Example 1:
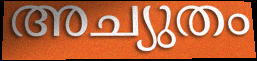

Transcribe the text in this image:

അച്യുതം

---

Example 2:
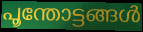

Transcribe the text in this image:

പൂന്തോട്ടങ്ങൾ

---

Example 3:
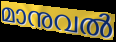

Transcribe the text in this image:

മാനുവൽ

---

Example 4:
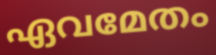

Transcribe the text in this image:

ഏവമേതം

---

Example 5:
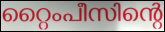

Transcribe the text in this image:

റ്റൈംപീസിന്റെ